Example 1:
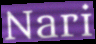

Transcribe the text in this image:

Nari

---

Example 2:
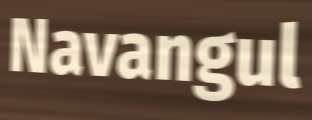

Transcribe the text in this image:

Navangul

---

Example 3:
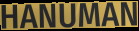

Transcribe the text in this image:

HANUMAN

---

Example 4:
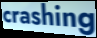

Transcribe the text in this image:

crashing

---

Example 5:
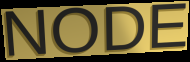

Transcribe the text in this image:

NODE